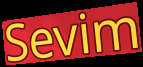
Sevim